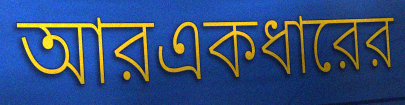
আরএকধারের